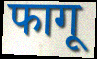
फागू